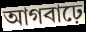
আগবাঢ়ে